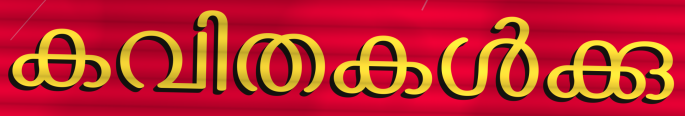
കവിതകൾക്കു